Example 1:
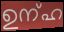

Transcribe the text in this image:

ഉന്ഹ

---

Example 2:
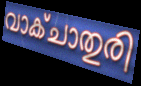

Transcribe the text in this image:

വാക്ചാതുരി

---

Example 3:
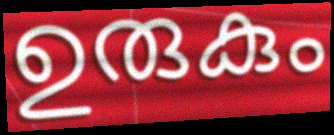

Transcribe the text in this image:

ഉരുകും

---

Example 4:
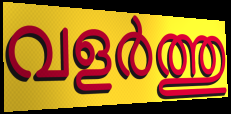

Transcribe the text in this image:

വളർത്തു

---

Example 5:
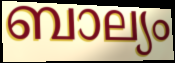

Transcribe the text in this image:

ബാല്യം